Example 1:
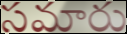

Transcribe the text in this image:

సమారు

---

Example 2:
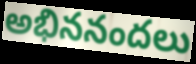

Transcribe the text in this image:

అభిననందలు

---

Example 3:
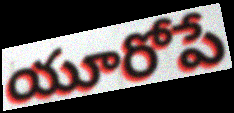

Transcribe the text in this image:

యూరోపే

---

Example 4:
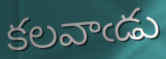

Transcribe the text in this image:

కలవాఁడు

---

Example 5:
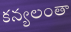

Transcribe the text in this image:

కన్యలంతా